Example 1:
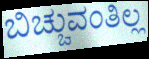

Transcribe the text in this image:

ಬಿಚ್ಚುವಂತಿಲ್ಲ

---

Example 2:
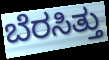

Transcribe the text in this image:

ಬೆರಸಿತ್ತು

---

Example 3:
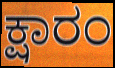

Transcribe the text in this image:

ಕ್ಷಾರಂ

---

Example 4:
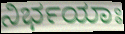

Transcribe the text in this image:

ನಿರ್ಭಯಾಃ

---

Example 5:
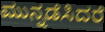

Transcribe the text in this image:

ಮುನ್ನಡೆಸಿದರೆ